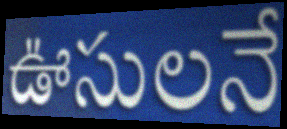
ఊసులనే